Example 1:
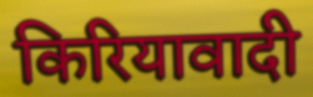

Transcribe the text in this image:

किरियावादी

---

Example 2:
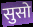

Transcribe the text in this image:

सुसो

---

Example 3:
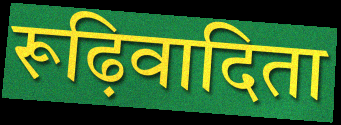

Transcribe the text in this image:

रूढ़िवादिता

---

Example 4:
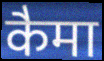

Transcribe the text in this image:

कैमा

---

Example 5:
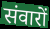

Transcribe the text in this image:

संवारों